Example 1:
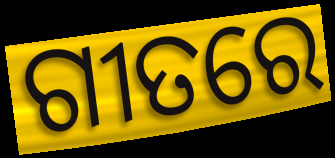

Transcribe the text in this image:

ଗୀତରେ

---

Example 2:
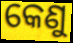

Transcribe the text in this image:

କେଣୁ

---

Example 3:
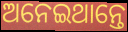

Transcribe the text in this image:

ଅନେଇଥାନ୍ତେ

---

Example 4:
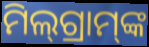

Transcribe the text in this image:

ମିଲ୍‌ଗ୍ରାମ୍‌ଙ୍କ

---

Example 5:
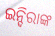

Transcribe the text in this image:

ଇନ୍ଦିରାଙ୍କ